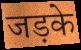
जड़के